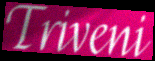
Triveni